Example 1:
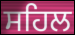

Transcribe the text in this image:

ਸਹਿਲ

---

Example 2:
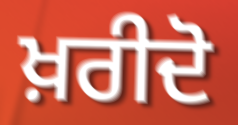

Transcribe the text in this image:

ਖ਼ਰੀਦੋ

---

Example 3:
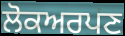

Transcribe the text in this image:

ਲੋਕਅਰਪਣ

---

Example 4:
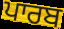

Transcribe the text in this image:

ਪਾਰਬ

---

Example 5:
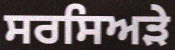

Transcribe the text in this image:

ਸਰਸਿਅੜੇ